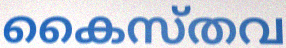
കൈസ്തവ